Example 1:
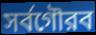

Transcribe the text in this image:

সর্বগৌরব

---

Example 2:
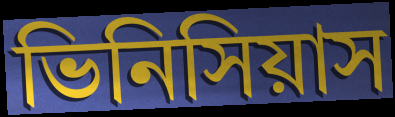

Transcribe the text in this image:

ভিনিসিয়াস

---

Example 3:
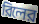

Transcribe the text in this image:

রিলের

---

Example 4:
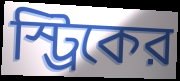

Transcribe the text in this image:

স্ট্রিকের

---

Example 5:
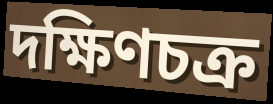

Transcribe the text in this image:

দক্ষিণচক্র